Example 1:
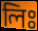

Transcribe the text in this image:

লিঃ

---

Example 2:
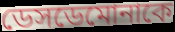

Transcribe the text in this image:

ডেসডেমোনাকে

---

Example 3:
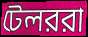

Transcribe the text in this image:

টেলররা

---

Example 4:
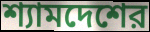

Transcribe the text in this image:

শ্যামদেশের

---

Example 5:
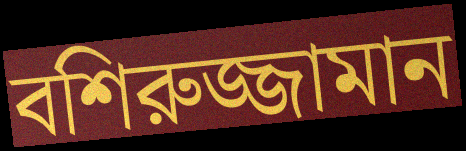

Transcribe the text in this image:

বশিরুজ্জামান